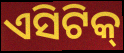
ଏସିଟିକ୍